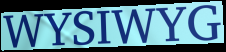
WYSIWYG